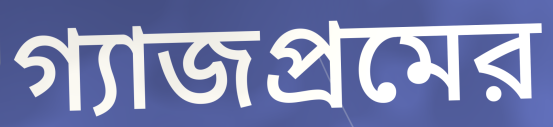
গ্যাজপ্রমের